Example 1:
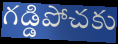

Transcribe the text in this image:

గడ్డిపోచకు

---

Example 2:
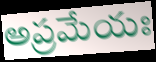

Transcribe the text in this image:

అప్రమేయః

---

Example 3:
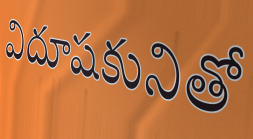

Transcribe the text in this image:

విదూషకునితో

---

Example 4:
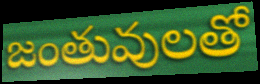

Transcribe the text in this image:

జంతువులతో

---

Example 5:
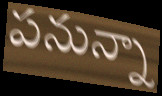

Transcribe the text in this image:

పనున్నా